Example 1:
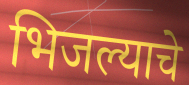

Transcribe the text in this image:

भिजल्याचे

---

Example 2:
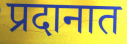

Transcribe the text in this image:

प्रदानात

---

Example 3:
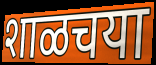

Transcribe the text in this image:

शाळचया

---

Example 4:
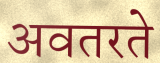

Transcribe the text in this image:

अवतरते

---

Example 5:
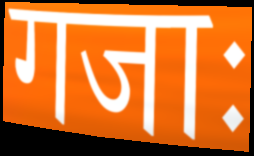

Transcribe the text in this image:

गजाः